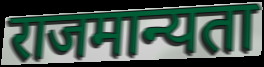
राजमान्यता